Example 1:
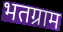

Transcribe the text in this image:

भतग्राम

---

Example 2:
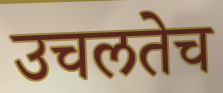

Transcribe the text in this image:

उचलतेच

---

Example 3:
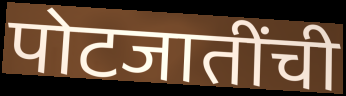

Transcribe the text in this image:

पोटजातींची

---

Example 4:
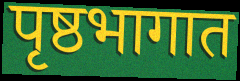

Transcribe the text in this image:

पृष्ठभागात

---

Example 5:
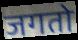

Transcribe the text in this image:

जगतो